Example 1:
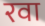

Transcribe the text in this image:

रवा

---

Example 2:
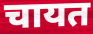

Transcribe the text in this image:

चायत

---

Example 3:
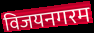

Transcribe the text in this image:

विजयनगरम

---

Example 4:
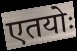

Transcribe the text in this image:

एतयोः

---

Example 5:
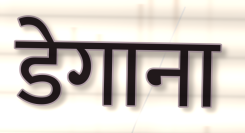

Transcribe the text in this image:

डेगाना